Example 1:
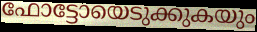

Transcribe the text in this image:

ഫോട്ടോയെടുക്കുകയും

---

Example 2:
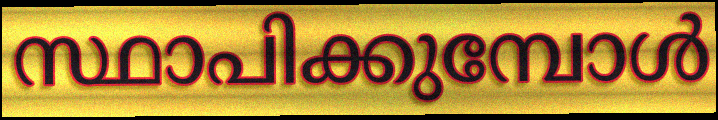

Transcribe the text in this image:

സ്ഥാപിക്കുമ്പോൾ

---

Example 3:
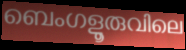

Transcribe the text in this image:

ബെംഗളൂരുവിലെ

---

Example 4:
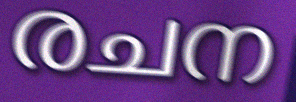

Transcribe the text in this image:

രചന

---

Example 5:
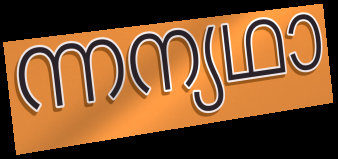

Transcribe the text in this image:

ന്നന്യഥാ